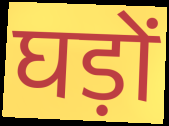
घड़ों